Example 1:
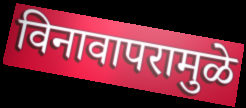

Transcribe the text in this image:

विनावापरामुळे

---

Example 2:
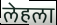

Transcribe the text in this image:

लेहला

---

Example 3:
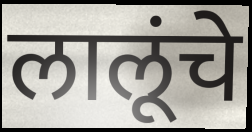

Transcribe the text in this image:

लालूंचे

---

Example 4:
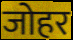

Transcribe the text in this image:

जोहर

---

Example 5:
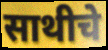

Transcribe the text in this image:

साथीचे